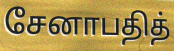
சேனாபதித்